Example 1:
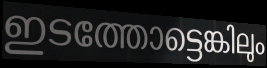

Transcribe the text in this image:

ഇടത്തോട്ടെങ്കിലും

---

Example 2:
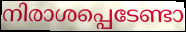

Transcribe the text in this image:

നിരാശപ്പെടേണ്ടാ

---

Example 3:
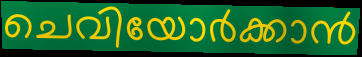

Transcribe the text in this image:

ചെവിയോർക്കാൻ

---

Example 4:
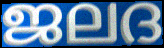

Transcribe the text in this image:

ജലദ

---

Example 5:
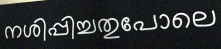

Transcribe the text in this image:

നശിപ്പിച്ചതുപോലെ